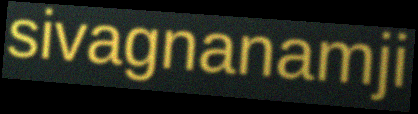
sivagnanamji